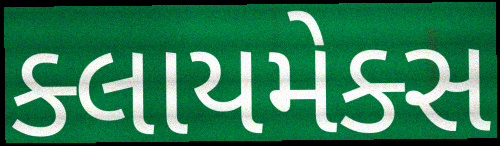
ક્લાયમેક્સ